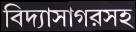
বিদ্যাসাগরসহ